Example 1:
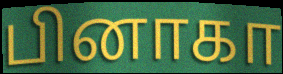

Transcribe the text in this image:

பினாகா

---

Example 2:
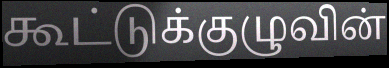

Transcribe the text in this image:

கூட்டுக்குழுவின்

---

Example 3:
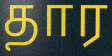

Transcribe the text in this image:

தார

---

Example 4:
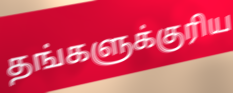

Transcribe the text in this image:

தங்களுக்குரிய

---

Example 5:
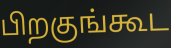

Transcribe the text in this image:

பிறகுங்கூட